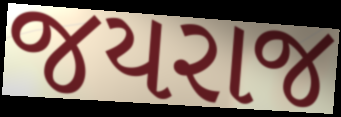
જયરાજ